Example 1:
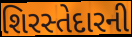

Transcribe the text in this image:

શિરસ્તેદારની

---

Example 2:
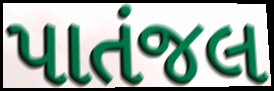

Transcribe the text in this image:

પાતંજલ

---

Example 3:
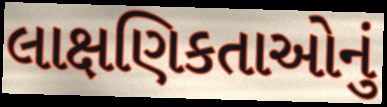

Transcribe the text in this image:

લાક્ષણિકતાઓનું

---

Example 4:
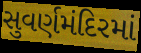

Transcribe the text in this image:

સુવર્ણમંદિરમાં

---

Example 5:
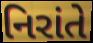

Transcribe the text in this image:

નિરાંતે